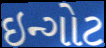
ઇન્ગોટ